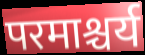
परमाश्चर्य